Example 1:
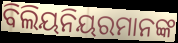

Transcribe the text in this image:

ବିଲିୟନିୟରମାନଙ୍କ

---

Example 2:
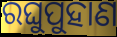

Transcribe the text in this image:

ରଘୁପୁହାଣ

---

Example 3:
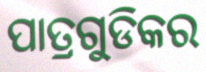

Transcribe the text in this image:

ପାତ୍ରଗୁଡିକର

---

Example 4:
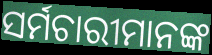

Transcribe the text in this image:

ସର୍ମଚାରୀମାନଙ୍କ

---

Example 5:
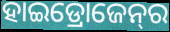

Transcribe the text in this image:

ହାଇଡ୍ରୋଜେନ୍‌ର